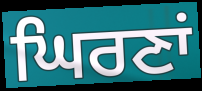
ਘਿਰਣਾਂ